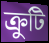
ক্ৰুটি